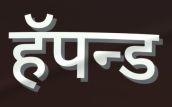
हॅपन्ड